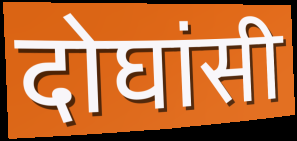
दोघांसी